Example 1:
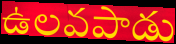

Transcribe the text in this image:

ఉలవపాడు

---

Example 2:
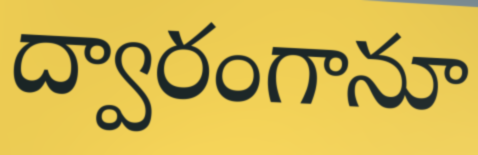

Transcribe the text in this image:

ద్వారంగానూ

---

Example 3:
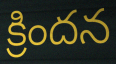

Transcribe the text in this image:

క్రిందన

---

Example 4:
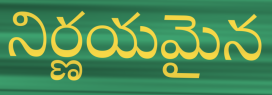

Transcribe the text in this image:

నిర్ణయమైన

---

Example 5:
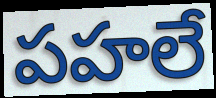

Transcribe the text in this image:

పహలే